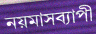
নয়মাসব্যাপী